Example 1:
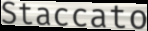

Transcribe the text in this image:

Staccato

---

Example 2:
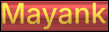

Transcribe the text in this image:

Mayank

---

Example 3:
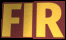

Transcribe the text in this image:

FIR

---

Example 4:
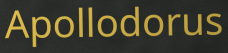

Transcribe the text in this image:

Apollodorus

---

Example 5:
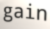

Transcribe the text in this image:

gain